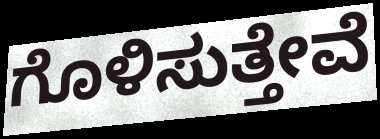
ಗೊಳಿಸುತ್ತೇವೆ